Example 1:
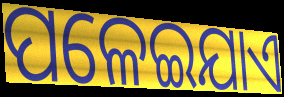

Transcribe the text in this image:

ପଳେଇଯାଏ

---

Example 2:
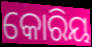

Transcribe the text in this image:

କୋରିୟ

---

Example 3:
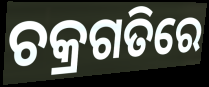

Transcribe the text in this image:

ଚକ୍ରଗତିରେ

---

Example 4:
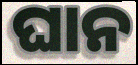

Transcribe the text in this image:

ଘାନ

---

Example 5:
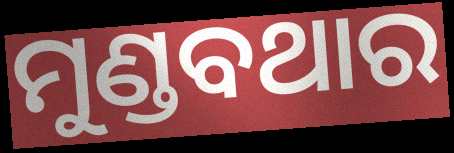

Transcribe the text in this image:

ମୁଣ୍ଡବଥାର